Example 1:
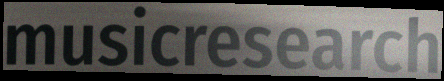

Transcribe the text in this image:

musicresearch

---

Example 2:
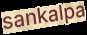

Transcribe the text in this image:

sankalpa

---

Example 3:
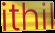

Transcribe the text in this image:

ithil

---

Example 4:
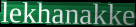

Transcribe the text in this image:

lekhanakke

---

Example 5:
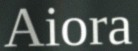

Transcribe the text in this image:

Aiora